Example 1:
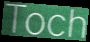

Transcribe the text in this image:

Toch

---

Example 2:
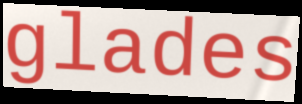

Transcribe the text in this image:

glades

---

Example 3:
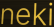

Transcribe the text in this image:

neki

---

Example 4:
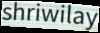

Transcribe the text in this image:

shriwilay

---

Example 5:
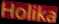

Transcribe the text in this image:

Holika